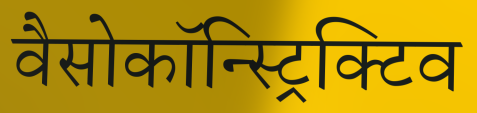
वैसोकॉन्स्ट्रिक्टिव